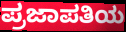
ಪ್ರಜಾಪತಿಯ